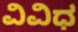
ವಿವಿಧ